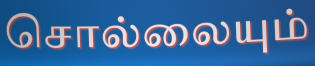
சொல்லையும்